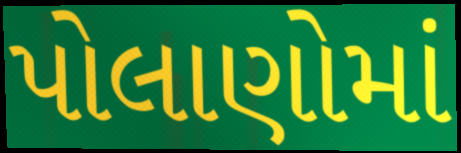
પોલાણોમાં